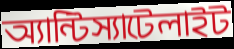
অ্যান্টিস্যাটেলাইট